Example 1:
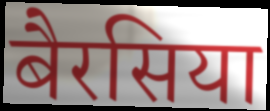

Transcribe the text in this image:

बैरसिया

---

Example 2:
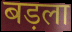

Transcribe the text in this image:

बड़ला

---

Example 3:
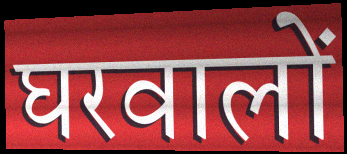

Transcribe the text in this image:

घरवालों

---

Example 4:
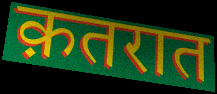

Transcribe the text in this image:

क़तरात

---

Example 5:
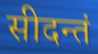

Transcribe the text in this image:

सीदन्तं